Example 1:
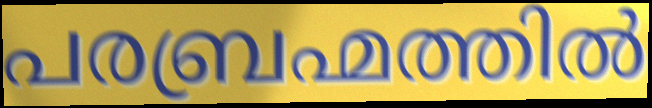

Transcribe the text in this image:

പരബ്രഹ്മത്തിൽ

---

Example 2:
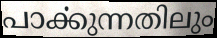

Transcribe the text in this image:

പാൎക്കുന്നതിലും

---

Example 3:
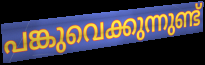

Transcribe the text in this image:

പങ്കുവെക്കുന്നുണ്ട്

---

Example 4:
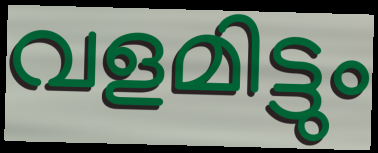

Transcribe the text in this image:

വളമിട്ടും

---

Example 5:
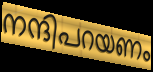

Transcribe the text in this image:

നന്ദിപറയണം